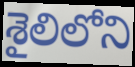
శైలిలోని